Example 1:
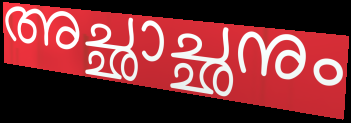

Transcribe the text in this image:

അച്ഛാച്ഛനും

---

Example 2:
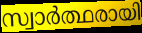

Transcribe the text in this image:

സ്വാർത്ഥരായി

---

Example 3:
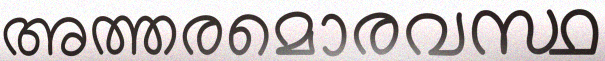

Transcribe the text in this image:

അത്തരമൊരവസ്ഥ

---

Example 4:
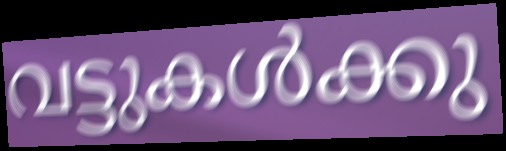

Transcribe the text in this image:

വട്ടുകൾക്കു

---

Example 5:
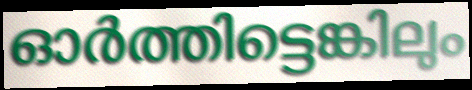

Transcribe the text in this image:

ഓർത്തിട്ടെങ്കിലും